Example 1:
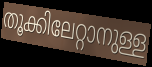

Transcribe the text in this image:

തൂക്കിലേറ്റാനുള്ള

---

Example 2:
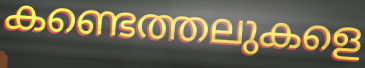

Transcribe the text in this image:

കണ്ടെത്തലുകളെ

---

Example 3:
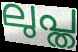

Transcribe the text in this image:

ലുപ്ത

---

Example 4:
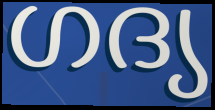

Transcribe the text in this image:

ഗദ്യ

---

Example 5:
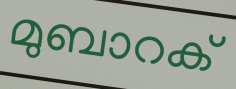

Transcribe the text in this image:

മുബാറക്